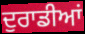
ਦੁਰਾਡੀਆਂ